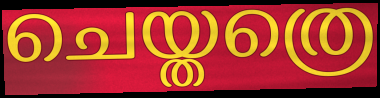
ചെയ്തത്രെ